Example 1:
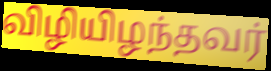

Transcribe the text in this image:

விழியிழந்தவர்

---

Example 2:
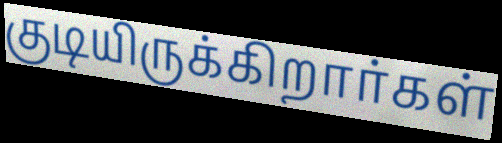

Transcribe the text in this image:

குடியிருக்கிறார்கள்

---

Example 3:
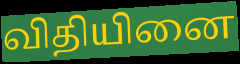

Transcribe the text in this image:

விதியினை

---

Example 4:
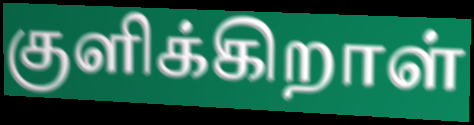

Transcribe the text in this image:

குளிக்கிறாள்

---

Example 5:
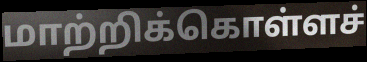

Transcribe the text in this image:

மாற்றிக்கொள்ளச்